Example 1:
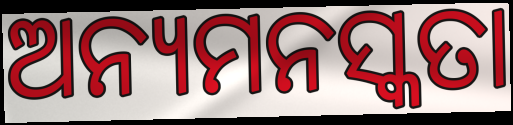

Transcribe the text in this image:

ଅନ୍ୟମନସ୍କତା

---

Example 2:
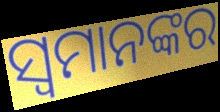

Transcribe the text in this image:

ସ୍ୱମାନଙ୍କର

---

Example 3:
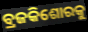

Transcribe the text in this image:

ବ୍ରଜକିଶୋରକୁ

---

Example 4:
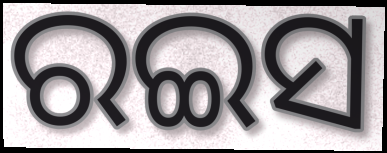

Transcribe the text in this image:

ରଇସ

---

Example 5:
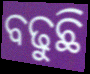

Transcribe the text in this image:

ବଢୁଛି